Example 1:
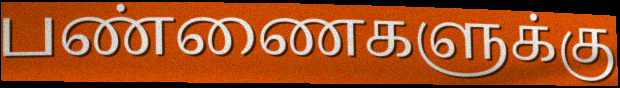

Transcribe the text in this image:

பண்ணைகளுக்கு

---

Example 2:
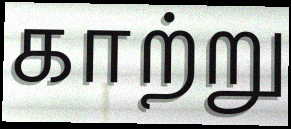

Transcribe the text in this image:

காற்று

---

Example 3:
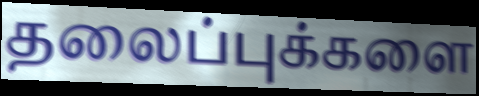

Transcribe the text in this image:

தலைப்புக்களை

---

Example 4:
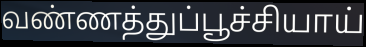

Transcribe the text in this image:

வண்ணத்துப்பூச்சியாய்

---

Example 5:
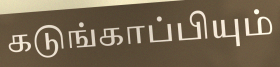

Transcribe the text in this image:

கடுங்காப்பியும்